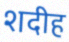
शदीह